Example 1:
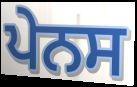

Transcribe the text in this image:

ਪੇਨਸ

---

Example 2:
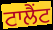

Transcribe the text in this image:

ਟਾਲੈਂਟ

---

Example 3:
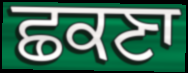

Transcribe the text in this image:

ਛਕਣਾ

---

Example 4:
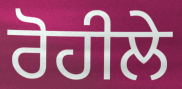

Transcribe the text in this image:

ਰੋਹੀਲੇ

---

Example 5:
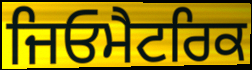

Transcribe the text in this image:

ਜਿਓਮੈਟਰਿਕ